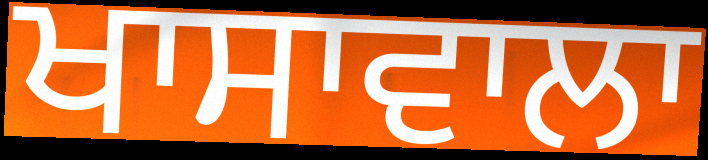
ਖਾਸਾਵਾਲਾ